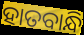
ହାତବାନ୍ଧି